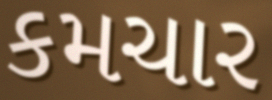
કમચાર